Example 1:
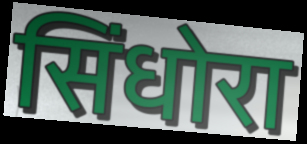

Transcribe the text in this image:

सिंधोरा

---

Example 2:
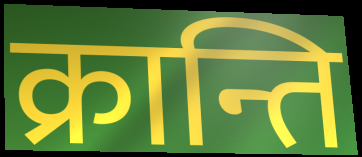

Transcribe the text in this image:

क्रान्ति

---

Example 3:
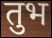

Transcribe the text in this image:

तुभ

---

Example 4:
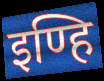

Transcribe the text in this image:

इण्हि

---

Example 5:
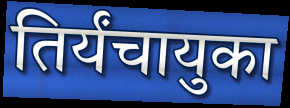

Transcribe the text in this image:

तिर्यंचायुका